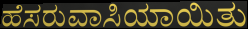
ಹೆಸರುವಾಸಿಯಾಯಿತು